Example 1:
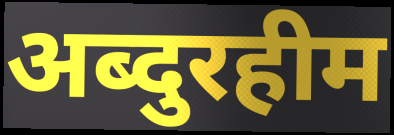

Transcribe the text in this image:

अब्दुरहीम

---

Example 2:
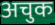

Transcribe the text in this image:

अचुक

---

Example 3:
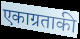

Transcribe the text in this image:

एकाग्रताकी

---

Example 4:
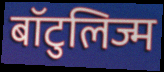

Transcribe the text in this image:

बॉटुलिज्म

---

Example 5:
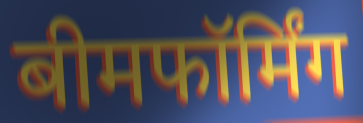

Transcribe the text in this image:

बीमफॉर्मिंग